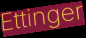
Ettinger